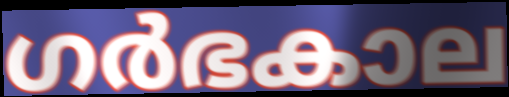
ഗർഭകാല